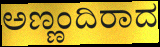
ಅಣ್ಣಂದಿರಾದ